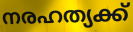
നരഹത്യക്ക്